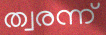
ത്വരന്ന്